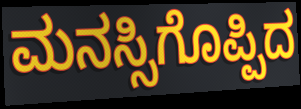
ಮನಸ್ಸಿಗೊಪ್ಪಿದ